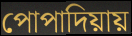
পোপাদিয়ায়